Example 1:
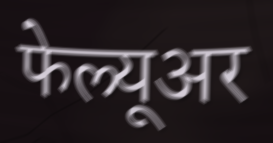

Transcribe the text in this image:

फेल्यूअर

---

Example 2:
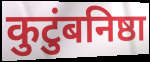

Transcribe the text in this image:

कुटुंबनिष्ठा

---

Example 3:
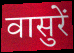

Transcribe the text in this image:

वासुरें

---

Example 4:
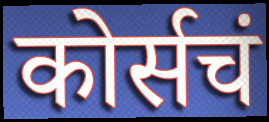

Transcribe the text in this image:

कोर्सचं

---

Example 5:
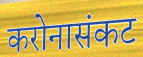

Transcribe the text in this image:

करोनासंकट